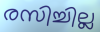
രസിച്ചില്ല